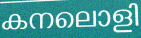
കനലൊളി